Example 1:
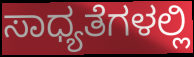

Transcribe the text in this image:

ಸಾಧ್ಯತೆಗಳಲ್ಲಿ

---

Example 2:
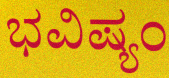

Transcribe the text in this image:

ಭವಿಷ್ಯಂ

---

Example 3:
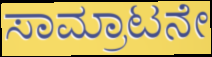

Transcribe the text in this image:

ಸಾಮ್ರಾಟನೇ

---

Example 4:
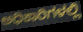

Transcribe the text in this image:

ಅಧಿಕಾರಿಗಳಲ್ಲಿ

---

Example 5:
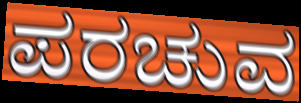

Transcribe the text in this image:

ಪರಚುವ